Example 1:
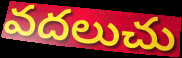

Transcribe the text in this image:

వదలుచు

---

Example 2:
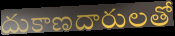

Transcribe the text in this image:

దుకాణదారులతో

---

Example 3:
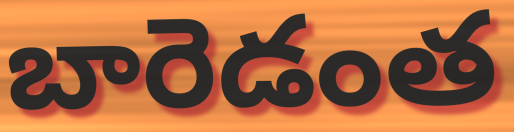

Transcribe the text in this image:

బారెడంత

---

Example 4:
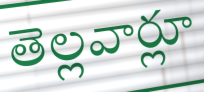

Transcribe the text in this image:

తెల్లవార్లూ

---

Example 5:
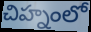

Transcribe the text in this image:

చిహ్నంలో